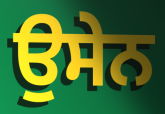
ਉਸੇਨ